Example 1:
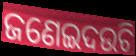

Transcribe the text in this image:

ଜଣେଇଦଉଚି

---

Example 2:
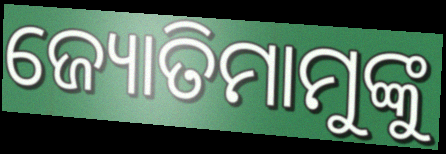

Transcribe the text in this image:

ଜ୍ୟୋତିମାମୁଙ୍କୁ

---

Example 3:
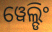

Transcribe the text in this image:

ୱେଲ୍ଡିଂ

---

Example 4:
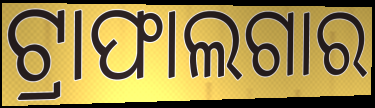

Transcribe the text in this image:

ଟ୍ରାଫାଲଗାର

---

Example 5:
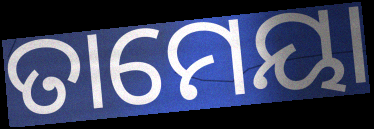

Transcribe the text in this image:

ତାମେୟା